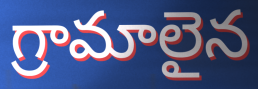
గ్రామాలైన